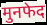
मुनफेद